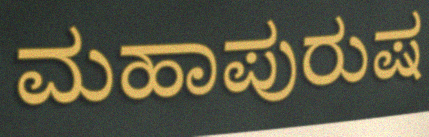
ಮಹಾಪುರುಷ